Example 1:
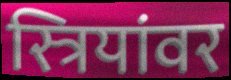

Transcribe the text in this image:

स्त्रियांवर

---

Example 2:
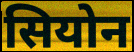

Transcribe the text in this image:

सियोन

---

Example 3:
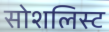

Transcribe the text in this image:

सोशलिस्ट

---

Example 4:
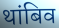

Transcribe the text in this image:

थांबिव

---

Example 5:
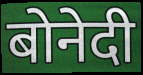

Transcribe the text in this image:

बोनेदी